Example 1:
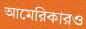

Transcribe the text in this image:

আমেরিকারও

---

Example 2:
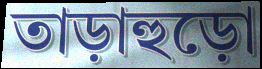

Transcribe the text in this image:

তাড়াহুড়ো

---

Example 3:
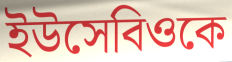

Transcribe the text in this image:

ইউসেবিওকে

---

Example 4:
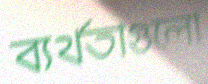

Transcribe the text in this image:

ব্যর্থতাগুলো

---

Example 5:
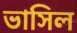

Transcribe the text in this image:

ভাসিল